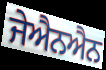
ਜੇਐਨਐਨ